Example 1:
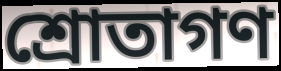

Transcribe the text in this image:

শ্রোতাগণ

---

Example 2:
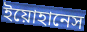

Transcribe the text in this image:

ইয়োহানেস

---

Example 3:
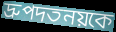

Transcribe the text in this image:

দ্রুপদতনয়কে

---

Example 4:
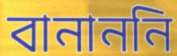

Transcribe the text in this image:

বানাননি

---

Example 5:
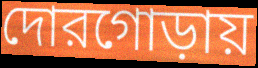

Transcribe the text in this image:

দোরগোড়ায়